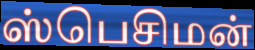
ஸ்பெசிமன்